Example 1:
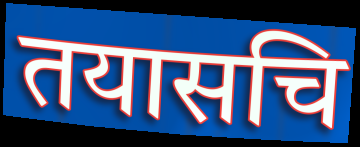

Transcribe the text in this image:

तयासचि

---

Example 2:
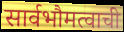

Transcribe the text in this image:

सार्वभौमत्वाची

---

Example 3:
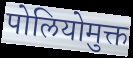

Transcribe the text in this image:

पोलियोमुक्त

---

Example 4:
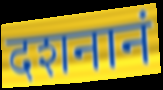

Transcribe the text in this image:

दशनानं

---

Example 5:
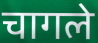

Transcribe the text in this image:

चागले